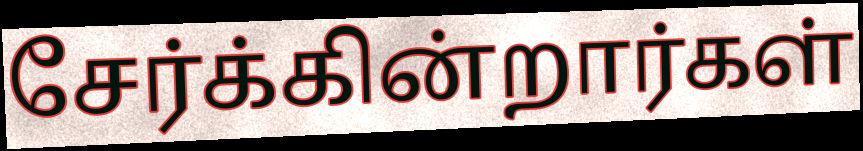
சேர்க்கின்றார்கள்